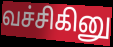
வச்சிகினு